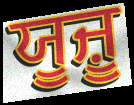
ਯੂਜ਼ੂ